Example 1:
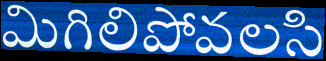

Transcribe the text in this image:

మిగిలిపోవలసి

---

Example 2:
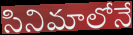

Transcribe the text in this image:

సినిమాలోనే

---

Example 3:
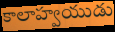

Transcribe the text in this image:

కాలాహ్వయుడు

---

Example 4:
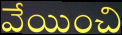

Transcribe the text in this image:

వేయించి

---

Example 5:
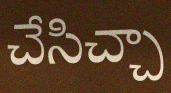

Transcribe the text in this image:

చేసిచ్చా